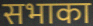
सभाका